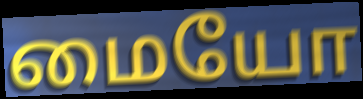
மையோ